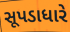
સૂપડાધારે